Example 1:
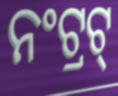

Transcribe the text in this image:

ନଂଟ୍ରଟ୍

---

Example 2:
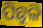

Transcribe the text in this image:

ପିଛୁଳି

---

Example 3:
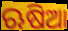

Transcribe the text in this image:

ଋଷିଆ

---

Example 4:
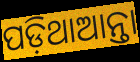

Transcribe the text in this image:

ପଡ଼ିଥାଆନ୍ତା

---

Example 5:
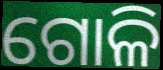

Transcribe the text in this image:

ଗୋଳି